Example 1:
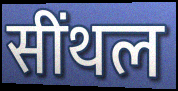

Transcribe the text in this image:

सींथल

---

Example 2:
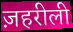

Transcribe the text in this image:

ज़हरीली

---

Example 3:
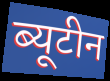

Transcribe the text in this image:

ब्यूटीन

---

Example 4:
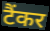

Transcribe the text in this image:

टैंकर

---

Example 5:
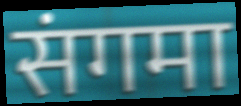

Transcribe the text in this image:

संगमा